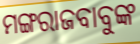
ମଙ୍ଗରାଜବାବୁଙ୍କ